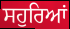
ਸਹੁਰਿਆਂ